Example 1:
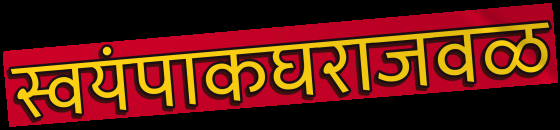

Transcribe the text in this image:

स्वयंपाकघराजवळ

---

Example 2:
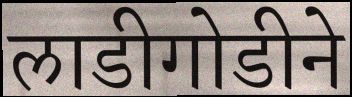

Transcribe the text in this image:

लाडीगोडीने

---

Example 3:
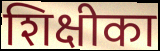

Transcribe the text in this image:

शिक्षीका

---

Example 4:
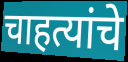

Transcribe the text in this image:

चाहत्यांचे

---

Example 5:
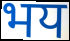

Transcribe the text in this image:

भय